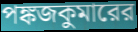
পঙ্কজকুমারের